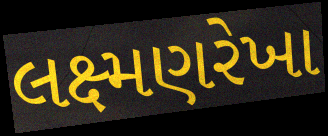
લક્ષ્મણરેખા